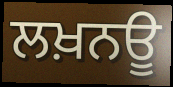
ਲਖ਼ਨਊ